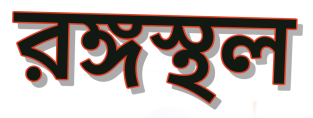
রঙ্গস্থল